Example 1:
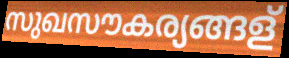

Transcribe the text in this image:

സുഖസൗകര്യങ്ങള്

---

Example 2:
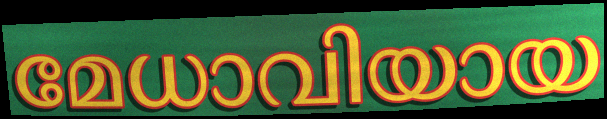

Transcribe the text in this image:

മേധാവിയായ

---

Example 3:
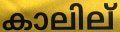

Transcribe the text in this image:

കാലില്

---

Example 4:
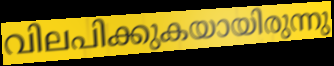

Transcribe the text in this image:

വിലപിക്കുകയായിരുന്നു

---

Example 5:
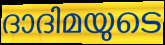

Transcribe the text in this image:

ദാദിമയുടെ